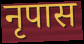
नृपास